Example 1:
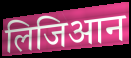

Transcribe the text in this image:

लिजिआन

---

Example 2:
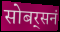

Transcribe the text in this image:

सोबर्सनं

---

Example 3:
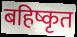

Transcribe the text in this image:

बहिष्कृत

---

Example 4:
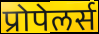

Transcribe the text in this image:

प्रोपेलर्स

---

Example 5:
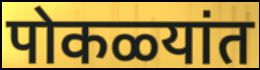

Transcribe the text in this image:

पोकळ्यांत